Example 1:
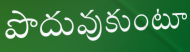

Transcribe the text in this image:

పొదువుకుంటూ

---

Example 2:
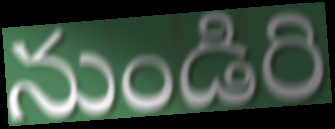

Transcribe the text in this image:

నుండిరి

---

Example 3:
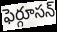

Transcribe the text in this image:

ఫెర్గూసన్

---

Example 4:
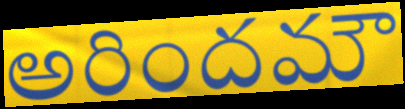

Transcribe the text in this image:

అరిందమౌ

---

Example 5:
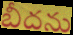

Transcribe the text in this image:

బీదను